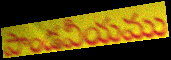
పాండవీయము